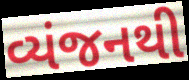
વ્યંજનથી